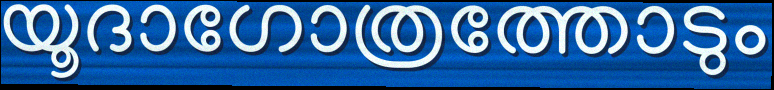
യൂദാഗോത്രത്തോടും